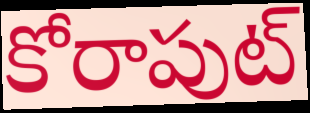
కోరాపుట్